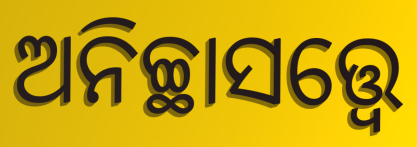
ଅନିଚ୍ଛାସତ୍ତ୍ବେ